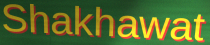
Shakhawat